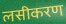
लसीकरण